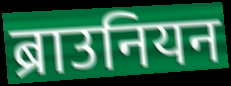
ब्राउनियन